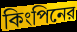
কিংপিনের